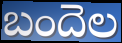
బందెల